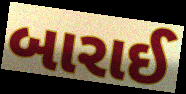
બારાઈ